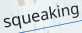
squeaking